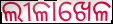
ଲୀଳାଖେଳ